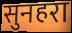
सुनहरा